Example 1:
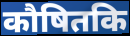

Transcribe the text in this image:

कौषितकि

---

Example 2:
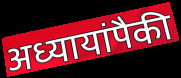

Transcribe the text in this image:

अध्यायांपैकी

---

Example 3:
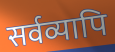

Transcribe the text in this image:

सर्वव्यापि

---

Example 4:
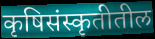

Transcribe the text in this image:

कृषिसंस्कृतीतील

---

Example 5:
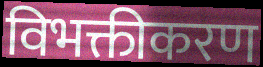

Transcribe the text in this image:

विभक्तीकरण